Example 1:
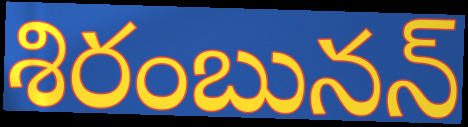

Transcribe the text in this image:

శిరంబునన్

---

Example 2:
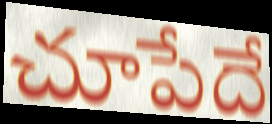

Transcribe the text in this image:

చూపేదే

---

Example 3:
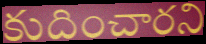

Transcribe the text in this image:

కుదించారని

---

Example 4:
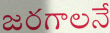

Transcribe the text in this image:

జరగాలనే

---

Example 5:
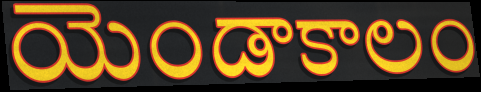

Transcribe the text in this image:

యెండాకాలం